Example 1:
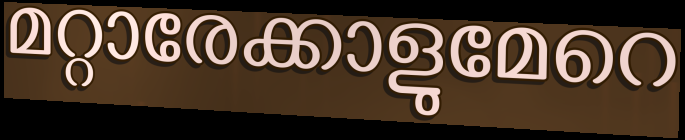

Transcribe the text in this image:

മറ്റാരേക്കാളുമേറെ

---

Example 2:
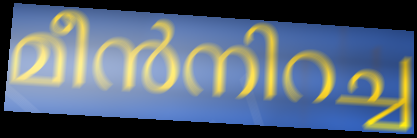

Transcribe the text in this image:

മീൻനിറച്ച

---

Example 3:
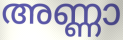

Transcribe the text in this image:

അണ്ണാ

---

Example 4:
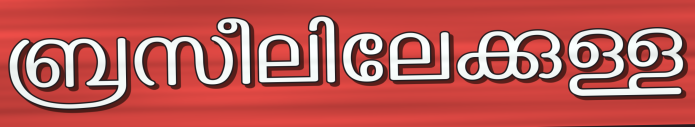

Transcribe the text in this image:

ബ്രസീലിലേക്കുള്ള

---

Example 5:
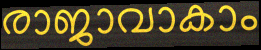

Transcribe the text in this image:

രാജാവാകാം